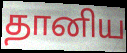
தானிய